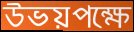
উভয়পক্ষে